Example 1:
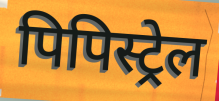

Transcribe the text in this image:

पिपिस्ट्रेल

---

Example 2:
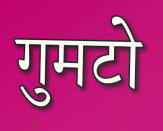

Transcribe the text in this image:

गुमटो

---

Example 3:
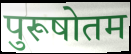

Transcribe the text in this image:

पुरूषोतम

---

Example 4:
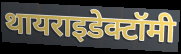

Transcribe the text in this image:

थायराइडेक्टॉमी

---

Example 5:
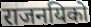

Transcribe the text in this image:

राजनयिको